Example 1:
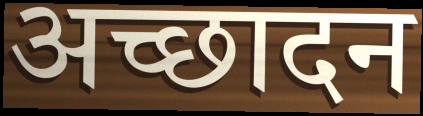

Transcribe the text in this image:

अच्छादन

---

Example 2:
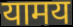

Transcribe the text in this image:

यामय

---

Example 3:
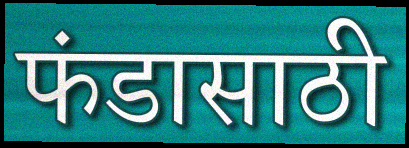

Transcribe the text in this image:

फंडासाठी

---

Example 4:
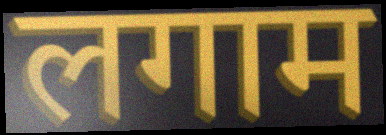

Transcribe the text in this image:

लगाम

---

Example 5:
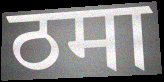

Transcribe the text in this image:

ठमा